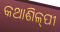
କଥାଶିଳ୍‌ପୀ